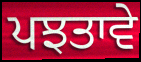
ਪਝਤਾਵੇ